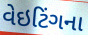
વેઇટિંગના